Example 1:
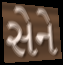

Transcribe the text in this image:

સેને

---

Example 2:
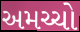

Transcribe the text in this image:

અમચ્ચો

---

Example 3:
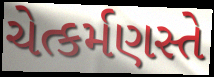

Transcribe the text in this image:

ચેત્કર્મણસ્તે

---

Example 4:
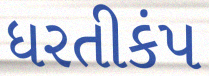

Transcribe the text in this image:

ધરતીકંપ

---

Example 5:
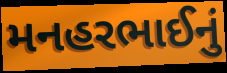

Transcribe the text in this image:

મનહરભાઈનું